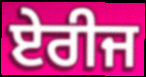
ਏਰੀਜ